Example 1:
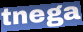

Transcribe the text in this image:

tnega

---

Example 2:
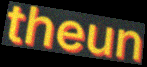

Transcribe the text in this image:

theun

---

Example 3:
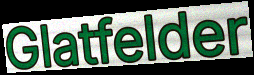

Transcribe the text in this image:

Glatfelder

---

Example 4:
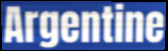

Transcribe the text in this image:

Argentine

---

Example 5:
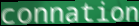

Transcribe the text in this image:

connation